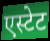
एस्टेट